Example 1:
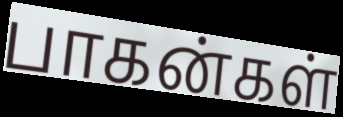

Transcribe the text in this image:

பாகன்கள்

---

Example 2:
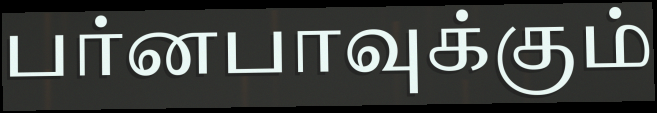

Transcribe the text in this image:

பர்னபாவுக்கும்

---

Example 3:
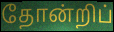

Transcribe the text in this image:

தோன்றிப்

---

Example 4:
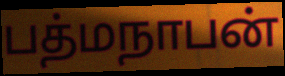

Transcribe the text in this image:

பத்மநாபன்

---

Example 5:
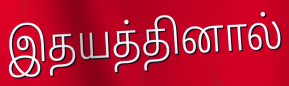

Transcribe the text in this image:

இதயத்தினால்